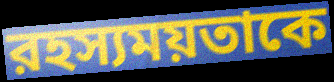
রহস্যময়তাকে